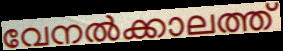
വേനൽക്കാലത്ത്